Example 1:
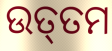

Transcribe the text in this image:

ଉତ୍‌ତମ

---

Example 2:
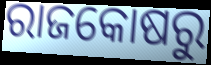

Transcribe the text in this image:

ରାଜକୋଷରୁ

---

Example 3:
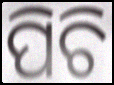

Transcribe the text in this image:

ପିଚି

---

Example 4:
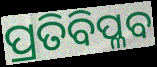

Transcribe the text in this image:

ପ୍ରତିବିପ୍ଳବ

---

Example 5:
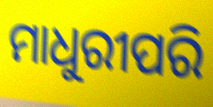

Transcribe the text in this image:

ମାଧୁରୀପରି